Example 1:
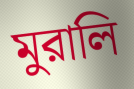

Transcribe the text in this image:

মুরালি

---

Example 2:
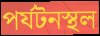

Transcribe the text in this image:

পর্যটনস্থল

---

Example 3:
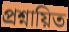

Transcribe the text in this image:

প্রশ্নায়িত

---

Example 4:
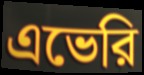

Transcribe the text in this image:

এভেরি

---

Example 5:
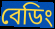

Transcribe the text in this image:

বেডিং